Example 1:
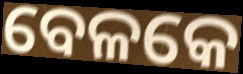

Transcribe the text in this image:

ବେଳକେ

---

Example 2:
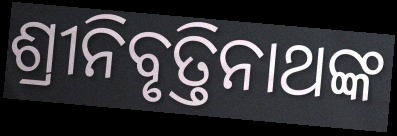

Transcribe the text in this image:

ଶ୍ରୀନିବୃତ୍ତିନାଥଙ୍କ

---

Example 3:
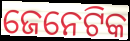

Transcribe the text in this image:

ଜେନେଟିକ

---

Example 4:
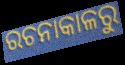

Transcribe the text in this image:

ରଚନାକାଳରୁ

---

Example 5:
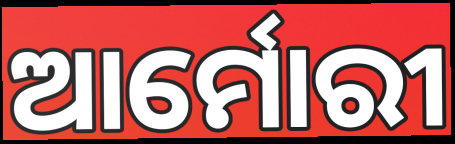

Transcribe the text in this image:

ଆର୍ମୋରୀ